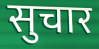
सुचार